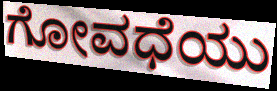
ಗೋವಧೆಯು